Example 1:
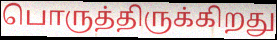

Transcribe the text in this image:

பொருத்திருக்கிறது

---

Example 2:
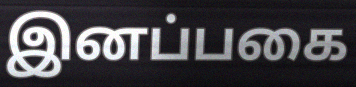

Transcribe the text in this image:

இனப்பகை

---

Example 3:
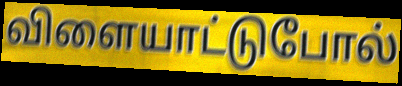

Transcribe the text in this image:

விளையாட்டுபோல்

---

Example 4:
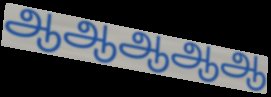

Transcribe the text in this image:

ஆஆஆஆஆ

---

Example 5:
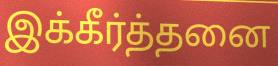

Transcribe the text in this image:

இக்கீர்த்தனை